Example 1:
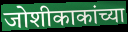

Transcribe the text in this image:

जोशीकाकांच्या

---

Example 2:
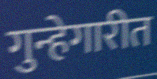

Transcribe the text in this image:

गुन्हेगारीत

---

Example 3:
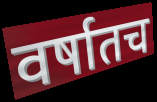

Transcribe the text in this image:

वर्षातच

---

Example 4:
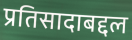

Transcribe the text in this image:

प्रतिसादाबद्दल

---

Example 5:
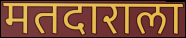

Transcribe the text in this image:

मतदाराला